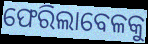
ଫେରିଲାବେଳକୁ